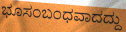
ಭೂಸಂಬಂಧವಾದದ್ದು